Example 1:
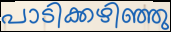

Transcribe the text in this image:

പാടിക്കഴിഞ്ഞു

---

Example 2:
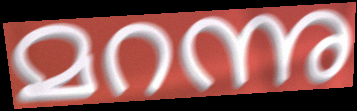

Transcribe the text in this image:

മറന്നു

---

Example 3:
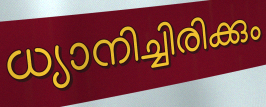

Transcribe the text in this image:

ധ്യാനിച്ചിരിക്കും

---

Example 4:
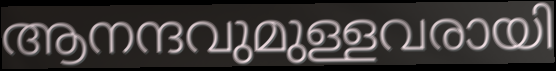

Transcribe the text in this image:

ആനന്ദവുമുള്ളവരായി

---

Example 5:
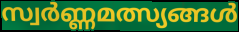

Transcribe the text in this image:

സ്വർണ്ണമത്സ്യങ്ങൾ